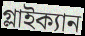
গ্লাইক্যান